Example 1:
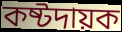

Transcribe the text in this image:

কষ্টদায়ক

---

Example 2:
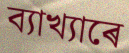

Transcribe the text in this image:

ব্যাখ্যাৰে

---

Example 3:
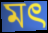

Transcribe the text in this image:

মৎ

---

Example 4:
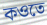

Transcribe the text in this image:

কওতে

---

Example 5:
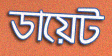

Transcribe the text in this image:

ডায়েট